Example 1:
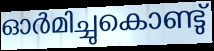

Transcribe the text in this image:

ഓർമിച്ചുകൊണ്ടു്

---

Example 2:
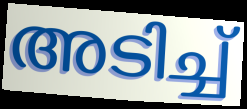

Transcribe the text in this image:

അടിച്ച്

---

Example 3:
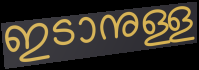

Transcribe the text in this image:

ഇടാനുള്ള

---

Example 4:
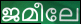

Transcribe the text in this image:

ജമീലേ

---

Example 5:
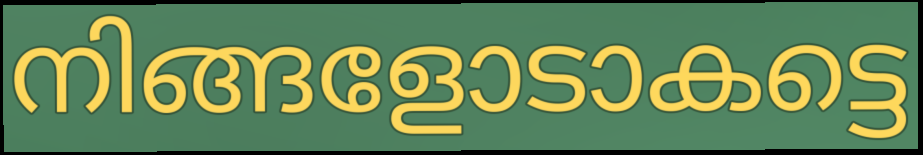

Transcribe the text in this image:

നിങ്ങളോടാകട്ടെ